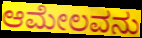
ಆಮೇಲವನು